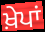
ਖ਼ੇਪਾਂ